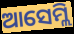
ଆସେମ୍ଲି